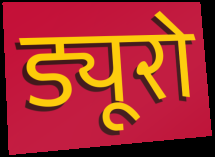
ड्यूरो